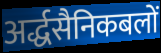
अर्द्धसैनिकबलों